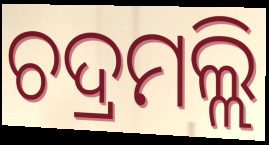
ଚଦ୍ରମଲ୍ଲି